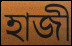
হাজী